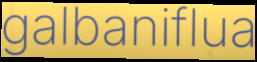
galbaniflua